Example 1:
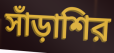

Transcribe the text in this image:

সাঁড়াশির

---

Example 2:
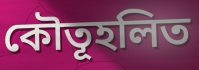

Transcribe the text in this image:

কৌতূহলিত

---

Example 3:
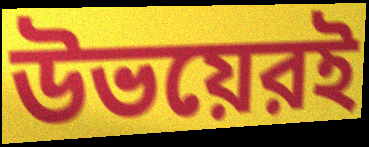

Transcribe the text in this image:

উভয়েরই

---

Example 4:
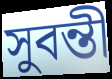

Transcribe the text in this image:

সুবন্তী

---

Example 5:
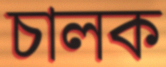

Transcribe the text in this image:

চালক